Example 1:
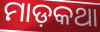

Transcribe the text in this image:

ମାଡ଼କଥା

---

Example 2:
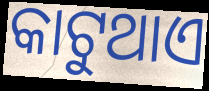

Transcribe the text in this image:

କାଟୁଥାଏ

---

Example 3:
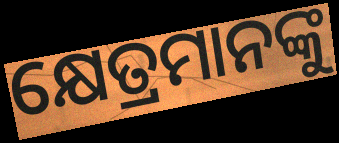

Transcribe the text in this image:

କ୍ଷେତ୍ରମାନଙ୍କୁ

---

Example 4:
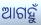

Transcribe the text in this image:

ଆଗହୁଁ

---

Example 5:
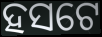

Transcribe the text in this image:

ହସଟେ